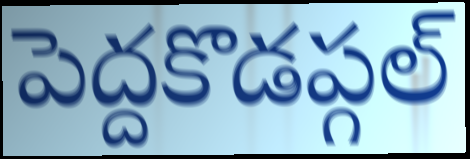
పెద్దకొడప్గల్